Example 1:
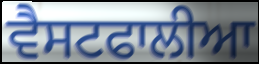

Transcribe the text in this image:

ਵੈਸਟਫਾਲੀਆ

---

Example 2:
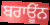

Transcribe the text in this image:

ਬਰਾਊਂਨ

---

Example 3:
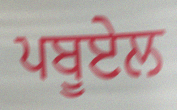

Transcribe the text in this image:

ਪਬੂਏਲ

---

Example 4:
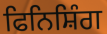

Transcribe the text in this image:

ਫਿਨਿਸ਼ਿੰਗ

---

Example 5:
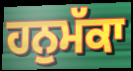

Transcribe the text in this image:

ਹਨੁਮੱਕਾ